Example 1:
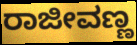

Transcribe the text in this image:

ರಾಜೀವಣ್ಣ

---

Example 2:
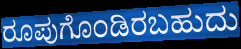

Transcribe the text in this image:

ರೂಪುಗೊಂಡಿರಬಹುದು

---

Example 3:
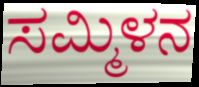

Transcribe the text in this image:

ಸಮ್ಮಿಳನ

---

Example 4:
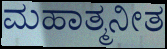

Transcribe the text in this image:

ಮಹಾತ್ಮನೀತ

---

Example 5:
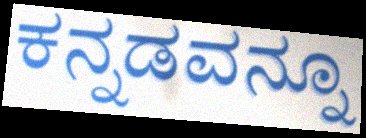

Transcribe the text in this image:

ಕನ್ನಡವನ್ನೂ